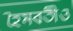
হৈমবতীও